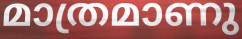
മാത്രമാണു